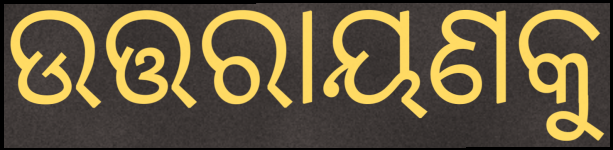
ଉତ୍ତରାୟଣକୁ